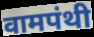
वामपंथी